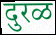
दुरळ